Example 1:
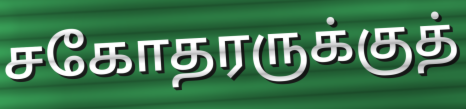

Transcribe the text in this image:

சகோதரருக்குத்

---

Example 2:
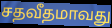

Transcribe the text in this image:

சதவீதமாவது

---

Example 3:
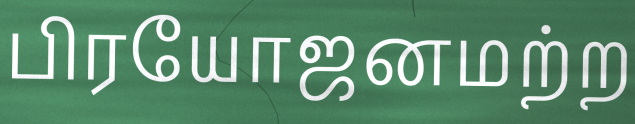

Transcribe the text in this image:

பிரயோஜனமற்ற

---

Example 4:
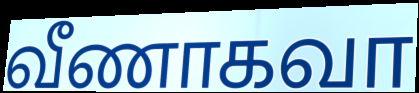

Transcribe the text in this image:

வீணாகவா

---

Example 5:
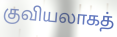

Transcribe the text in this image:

குவியலாகத்